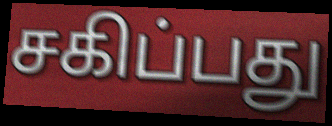
சகிப்பது